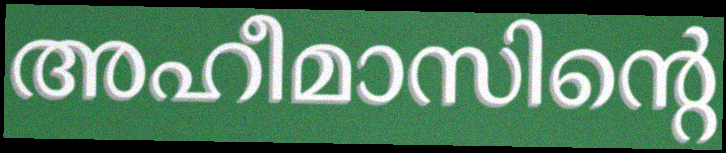
അഹീമാസിന്റെ